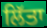
ਲਿੱਤਾ